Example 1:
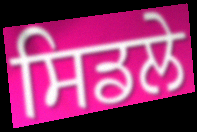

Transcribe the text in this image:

ਸਿਡਲੇ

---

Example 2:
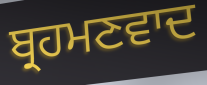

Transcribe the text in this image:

ਬ੍ਰਹਮਣਵਾਦ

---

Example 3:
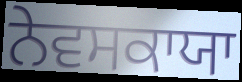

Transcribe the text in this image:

ਨੇਵਸਕਾਯਾ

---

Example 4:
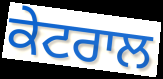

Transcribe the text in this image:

ਕੇਟਰਾਲ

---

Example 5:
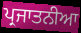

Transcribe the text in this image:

ਪ੍ਰਜਾਤਨੀਆ